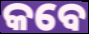
କବେ